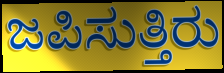
ಜಪಿಸುತ್ತಿರು